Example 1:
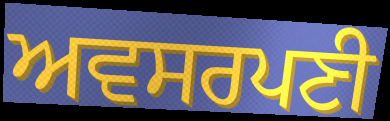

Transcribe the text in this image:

ਅਵਸਰਪਣੀ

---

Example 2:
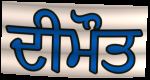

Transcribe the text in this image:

ਦੀਮੌਤ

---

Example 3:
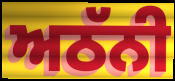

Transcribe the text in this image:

ਅਠੱਨੀ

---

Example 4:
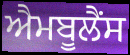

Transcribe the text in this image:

ਐਮਬੂਲੈਂਸ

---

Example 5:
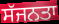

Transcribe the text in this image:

ਸੱਜਨਤਾ